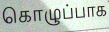
கொழுப்பாக